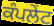
ਕੰਪਲੇਂਟ